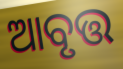
ଆବୃତ୍ତ